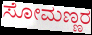
ಸೋಮಣ್ಣರ